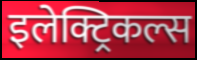
इलेक्ट्रिकल्‍स